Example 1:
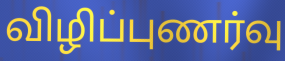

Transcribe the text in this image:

விழிப்புணர்வு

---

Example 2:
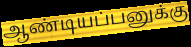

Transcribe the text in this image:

ஆண்டியப்பனுக்கு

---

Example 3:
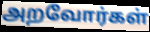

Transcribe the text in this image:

அறவோர்கள்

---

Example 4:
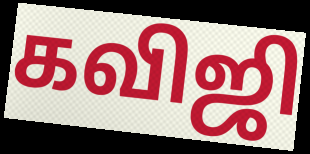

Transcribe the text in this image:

கவிஜி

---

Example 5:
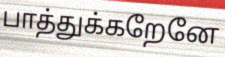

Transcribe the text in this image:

பாத்துக்கறேனே